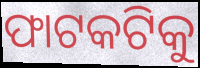
ଫାଟକଟିକୁ